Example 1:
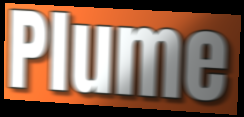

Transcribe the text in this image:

Plume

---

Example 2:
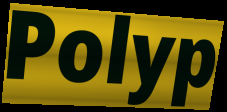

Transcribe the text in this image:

Polyp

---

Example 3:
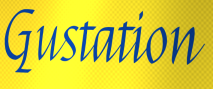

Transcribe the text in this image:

Gustation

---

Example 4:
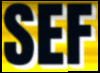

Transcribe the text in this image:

SEF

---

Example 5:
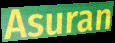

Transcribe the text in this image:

Asuran